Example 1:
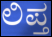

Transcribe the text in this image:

ಲಿಪ್ತ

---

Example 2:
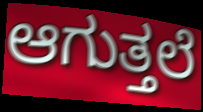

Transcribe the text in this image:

ಆಗುತ್ತಲೆ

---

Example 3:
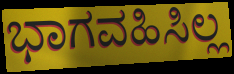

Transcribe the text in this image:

ಭಾಗವಹಿಸಿಲ್ಲ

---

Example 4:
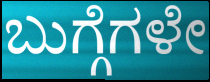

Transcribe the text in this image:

ಬುಗ್ಗೆಗಳೇ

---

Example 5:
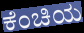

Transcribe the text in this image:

ಕೆಂಚಿಯ